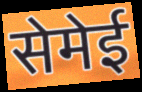
सेमेई